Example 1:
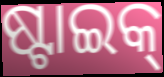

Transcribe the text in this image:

ଷ୍ଟାଇକ୍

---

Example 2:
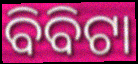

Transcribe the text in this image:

ବିବିଟା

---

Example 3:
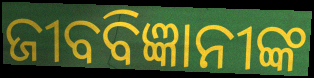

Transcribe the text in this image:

ଜୀବବିଜ୍ଞାନୀଙ୍କ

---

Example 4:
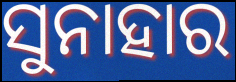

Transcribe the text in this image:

ସୁନାହାର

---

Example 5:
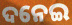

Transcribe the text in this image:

ଦନେଇ